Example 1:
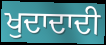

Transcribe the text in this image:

ਖੁਦਾਦਾਦੀ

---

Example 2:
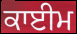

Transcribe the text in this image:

ਕਾਈਮ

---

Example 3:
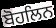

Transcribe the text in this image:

ਬੋਹਲਿਨ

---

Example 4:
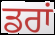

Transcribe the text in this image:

ਡਰਾਂ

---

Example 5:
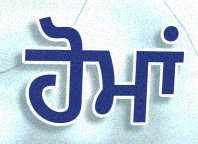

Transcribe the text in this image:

ਹੋਮਾਂ